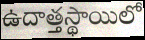
ఉదాత్తస్థాయిలో